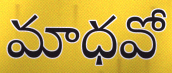
మాధవో